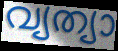
വ്യത്യാ